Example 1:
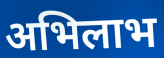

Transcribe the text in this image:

अभिलाभ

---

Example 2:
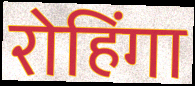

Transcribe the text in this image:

रोहिंगा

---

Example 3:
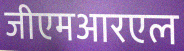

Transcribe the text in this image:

जीएमआरएल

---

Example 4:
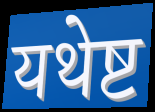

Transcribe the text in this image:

यथेष्ट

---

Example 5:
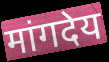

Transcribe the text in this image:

मांगदेय